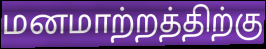
மனமாற்றத்திற்கு